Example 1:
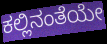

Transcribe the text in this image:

ಕಲ್ಲಿನಂತೆಯೇ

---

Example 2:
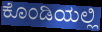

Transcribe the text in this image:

ಕೊಂಡಿಯಲ್ಲಿ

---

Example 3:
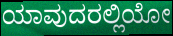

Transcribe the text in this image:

ಯಾವುದರಲ್ಲಿಯೋ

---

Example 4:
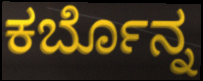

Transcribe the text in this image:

ಕರ್ಬೊನ್ನ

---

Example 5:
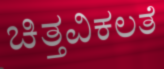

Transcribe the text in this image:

ಚಿತ್ತವಿಕಲತೆ